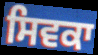
ਸਿਵਕਾ